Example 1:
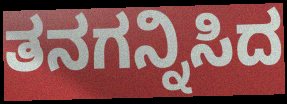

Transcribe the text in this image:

ತನಗನ್ನಿಸಿದ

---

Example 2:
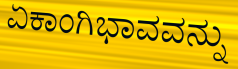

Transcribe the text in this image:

ಏಕಾಂಗಿಭಾವವನ್ನು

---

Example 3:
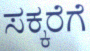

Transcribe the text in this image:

ಸಕ್ಕರೆಗೆ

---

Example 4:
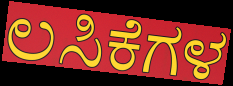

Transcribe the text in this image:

ಲಸಿಕೆಗಳ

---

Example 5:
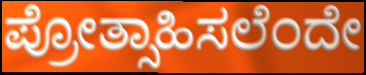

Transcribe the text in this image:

ಪ್ರೋತ್ಸಾಹಿಸಲೆಂದೇ